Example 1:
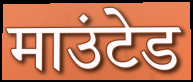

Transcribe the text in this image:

माउंटेड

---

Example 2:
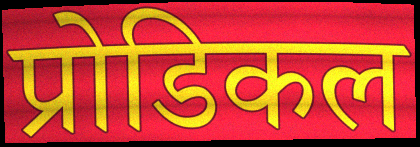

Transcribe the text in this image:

प्रोडिकल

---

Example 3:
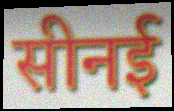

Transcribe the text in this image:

सीनई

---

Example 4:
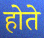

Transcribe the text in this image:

होते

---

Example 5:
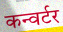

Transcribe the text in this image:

कन्वर्टर